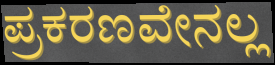
ಪ್ರಕರಣವೇನಲ್ಲ